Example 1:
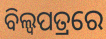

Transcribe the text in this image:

ବିଲ୍ଵପତ୍ରରେ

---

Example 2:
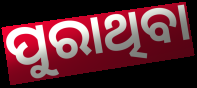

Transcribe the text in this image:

ପୁରାଥିବା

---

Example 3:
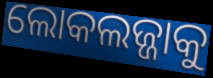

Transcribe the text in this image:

ଲୋକଲଜ୍ଜାକୁ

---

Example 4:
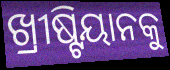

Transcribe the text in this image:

ଖ୍ରୀଷ୍ଟିୟାନକୁ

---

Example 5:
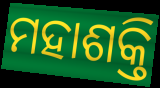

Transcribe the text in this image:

ମହାଶକ୍ତି